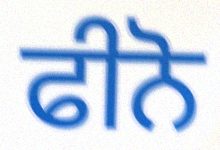
ਫੀਨੋ